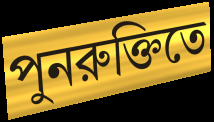
পুনরুক্তিতে